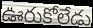
ఊరుకోలేడు